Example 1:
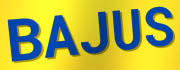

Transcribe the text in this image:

BAJUS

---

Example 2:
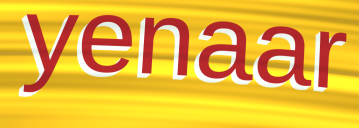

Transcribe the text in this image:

yenaar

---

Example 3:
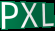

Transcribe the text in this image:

PXL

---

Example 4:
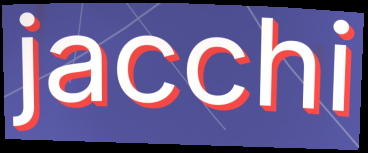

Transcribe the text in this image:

jacchi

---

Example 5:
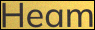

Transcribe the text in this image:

Heam